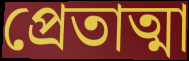
প্রেতাত্মা